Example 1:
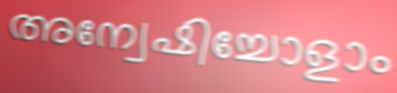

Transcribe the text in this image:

അന്വേഷിച്ചോളാം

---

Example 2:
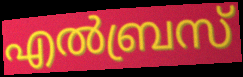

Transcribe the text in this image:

എൽബ്രസ്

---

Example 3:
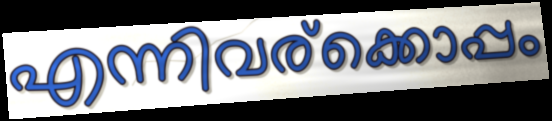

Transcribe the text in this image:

എന്നിവര്ക്കൊപ്പം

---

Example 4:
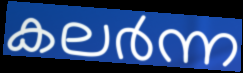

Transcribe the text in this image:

കലർന്ന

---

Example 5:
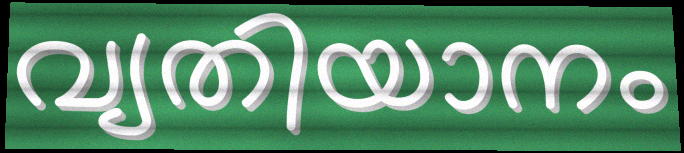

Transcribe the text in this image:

വ്യതിയാനം